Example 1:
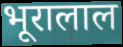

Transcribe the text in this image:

भूरालाल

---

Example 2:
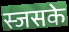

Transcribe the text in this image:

स्जसके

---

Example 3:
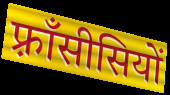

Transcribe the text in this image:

फ़्राँसीसियों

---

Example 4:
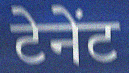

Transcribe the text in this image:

टेनेंट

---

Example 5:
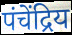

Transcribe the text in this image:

पंचेंद्रिय